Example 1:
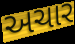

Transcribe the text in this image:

અચાર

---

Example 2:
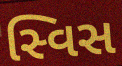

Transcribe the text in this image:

સ્વિસ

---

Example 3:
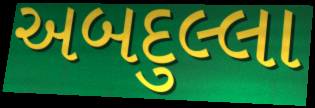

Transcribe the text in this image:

અબદુલ્લા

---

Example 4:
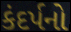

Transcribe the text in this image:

કંદર્પનો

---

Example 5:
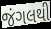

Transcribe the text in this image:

જંગલથી